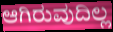
ಆಗಿರುವುದಿಲ್ಲ